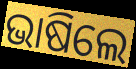
ଭାଷିଲେ